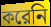
করেনি